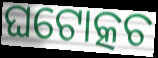
ଘଟୋତ୍କଚ